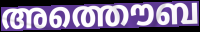
അത്തൌബ